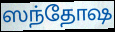
ஸந்தோஷ